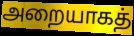
அறையாகத்